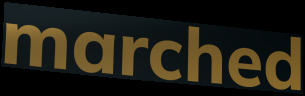
marched